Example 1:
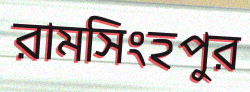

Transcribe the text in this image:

রামসিংহপুর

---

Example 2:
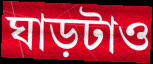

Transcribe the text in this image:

ঘাড়টাও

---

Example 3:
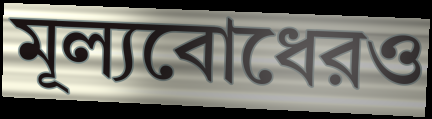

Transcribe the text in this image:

মূল্যবোধেরও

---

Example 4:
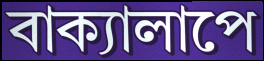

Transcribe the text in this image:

বাক্যালাপে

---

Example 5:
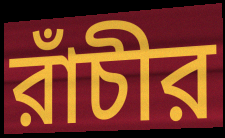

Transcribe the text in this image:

রাঁচীর